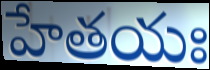
హేతయః